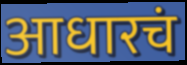
आधारचं